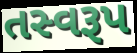
તસ્વરૂપ